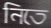
নিতে